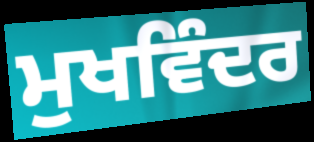
ਮੁਖਵਿੰਦਰ